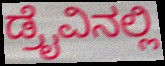
ಡ್ರೈವಿನಲ್ಲಿ